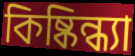
কিষ্কিন্ধ্যা